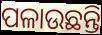
ପଳାଉଛନ୍ତି